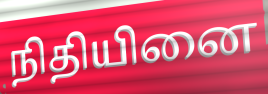
நிதியினை